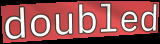
doubled